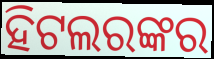
ହିଟଲରଙ୍କର